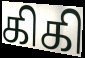
கிகி